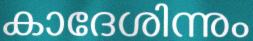
കാദേശിന്നും